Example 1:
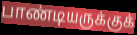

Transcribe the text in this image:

பாண்டியருக்குக்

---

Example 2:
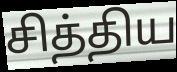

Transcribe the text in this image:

சித்திய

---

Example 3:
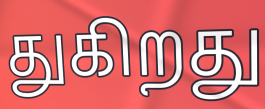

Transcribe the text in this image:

துகிறது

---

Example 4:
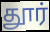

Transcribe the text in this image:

தூர்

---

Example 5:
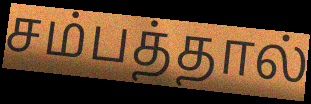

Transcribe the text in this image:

சம்பத்தால்